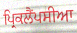
ਪ੍ਰਿਕਲੈਂਪਸੀਆ